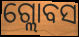
ଗ୍ଲୋବସ